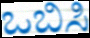
ಒಬಿಸಿ